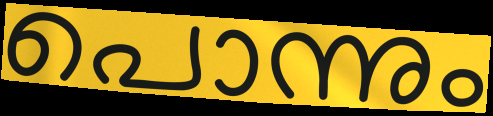
പൊന്നും